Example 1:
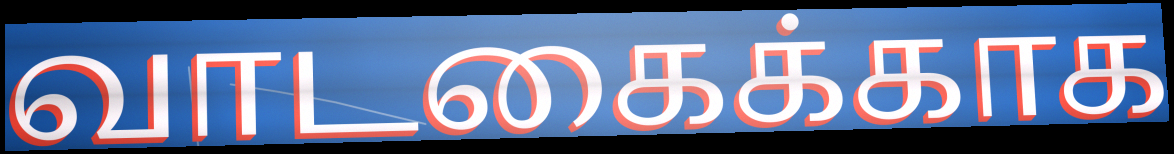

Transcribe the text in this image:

வாடகைக்காக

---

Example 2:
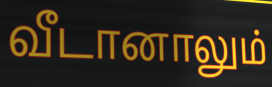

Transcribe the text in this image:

வீடானாலும்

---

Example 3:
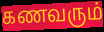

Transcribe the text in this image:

கணவரும்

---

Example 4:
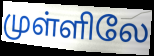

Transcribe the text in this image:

முள்ளிலே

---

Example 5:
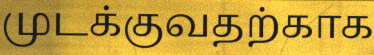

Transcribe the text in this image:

முடக்குவதற்காக